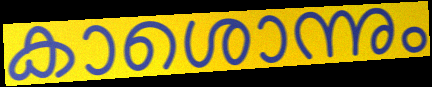
കാശൊന്നും